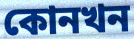
কোনখন